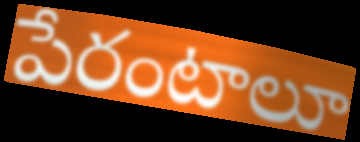
పేరంటాలూ